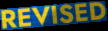
REVISED